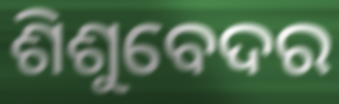
ଶିଶୁବେଦର